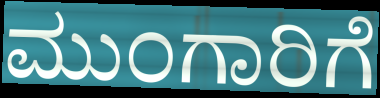
ಮುಂಗಾರಿಗೆ